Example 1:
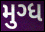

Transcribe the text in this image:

મુગ્ધ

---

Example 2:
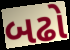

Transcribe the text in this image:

બઢો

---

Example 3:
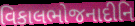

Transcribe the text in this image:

વિકાલભોજનાદીનિ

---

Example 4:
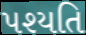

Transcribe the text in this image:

પશ્યતિ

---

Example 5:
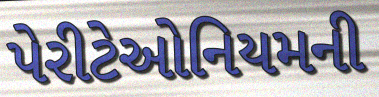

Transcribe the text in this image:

પેરીટેઓનિયમની